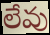
లేవు